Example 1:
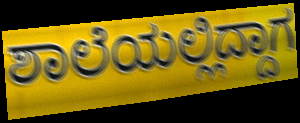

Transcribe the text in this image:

ಶಾಲೆಯಲ್ಲಿದ್ದಾಗ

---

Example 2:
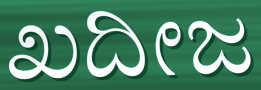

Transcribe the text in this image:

ಖದೀಜ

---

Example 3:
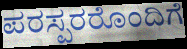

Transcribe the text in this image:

ಪರಸ್ಪರರೊಂದಿಗೆ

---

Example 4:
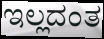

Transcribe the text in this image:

ಇಲ್ಲದಂತ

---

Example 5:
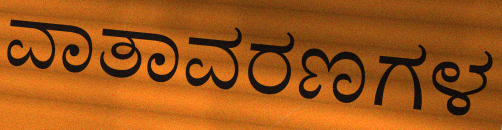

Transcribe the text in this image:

ವಾತಾವರಣಗಳ